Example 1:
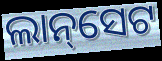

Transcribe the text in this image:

ଲାନ୍‌ସେଟ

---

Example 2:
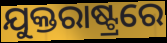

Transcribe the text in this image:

ଯୁକ୍ତରାଷ୍ଟ୍ରରେ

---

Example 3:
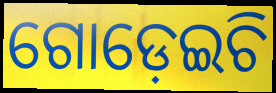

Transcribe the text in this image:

ଗୋଡ଼େଇଚି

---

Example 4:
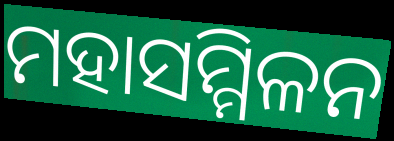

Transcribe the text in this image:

ମହାସମ୍ମିଳନ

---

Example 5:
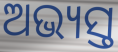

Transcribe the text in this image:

ଅଭ୍ୟସ୍ତ